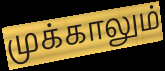
முக்காலும்